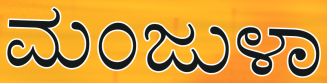
ಮಂಜುಳಾ